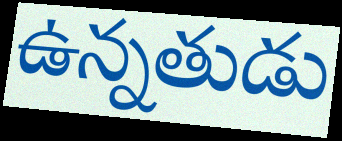
ఉన్నతుడు